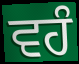
ਵਹੰ